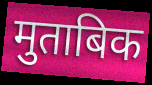
मुताबिक